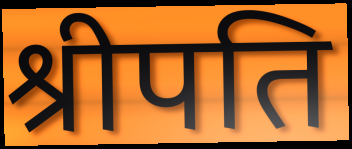
श्रीपति